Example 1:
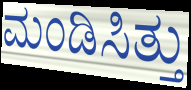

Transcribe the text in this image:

ಮಂಡಿಸಿತ್ತು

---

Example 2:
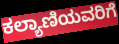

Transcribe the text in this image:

ಕಲ್ಯಾಣಿಯವರಿಗೆ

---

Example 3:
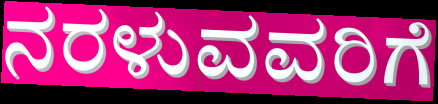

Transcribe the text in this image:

ನರಳುವವರಿಗೆ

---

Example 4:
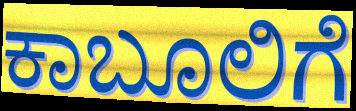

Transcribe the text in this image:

ಕಾಬೂಲಿಗೆ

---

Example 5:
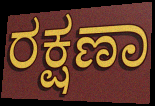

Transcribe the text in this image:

ರಕ್ಷಣಾ